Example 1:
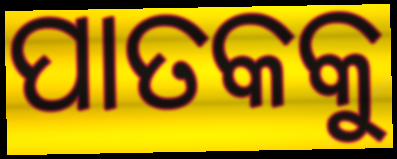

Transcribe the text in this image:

ପାତକକୁ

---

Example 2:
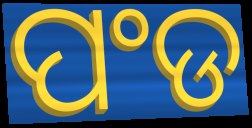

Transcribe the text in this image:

ପଂଡ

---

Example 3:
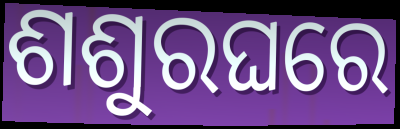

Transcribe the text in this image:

ଶଶୁରଘରେ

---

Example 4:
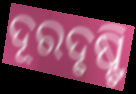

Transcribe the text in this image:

ଦୂରଦୃଷ୍ଟି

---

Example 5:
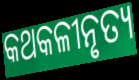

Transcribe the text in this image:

କଥକଳୀନୃତ୍ୟ